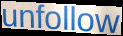
unfollow